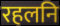
रहलनि